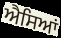
ਐਸਿਆਂ